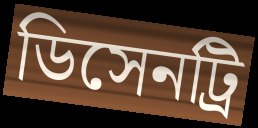
ডিসেনট্রি